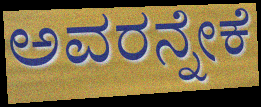
ಅವರನ್ನೇಕೆ